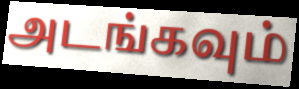
அடங்கவும்